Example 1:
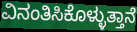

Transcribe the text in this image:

ವಿನಂತಿಸಿಕೊಳ್ಳುತ್ತಾನೆ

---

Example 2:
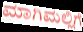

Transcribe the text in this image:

ಮಾಗಿಮಲ್ಲಿಗೆ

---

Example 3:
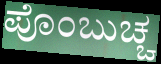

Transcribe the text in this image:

ಪೊಂಬುಚ್ಚ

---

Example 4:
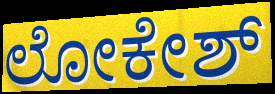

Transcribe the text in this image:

ಲೋಕೇಶ್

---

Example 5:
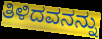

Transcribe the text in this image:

ತಿಳಿದವನನ್ನು